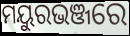
ମୟୁରଭଞ୍ଜରେ